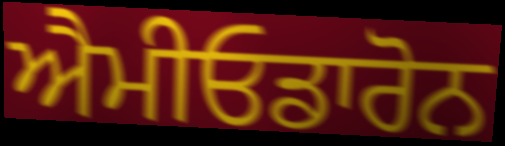
ਐਮੀਓਡਾਰੋਨ